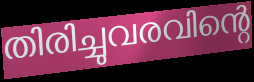
തിരിച്ചുവരവിന്റെ